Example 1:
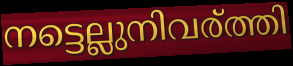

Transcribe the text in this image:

നട്ടെല്ലുനിവര്ത്തി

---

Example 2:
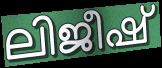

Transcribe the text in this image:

ലിജീഷ്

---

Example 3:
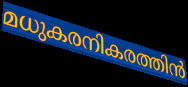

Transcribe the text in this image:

മധുകരനികരത്തിൻ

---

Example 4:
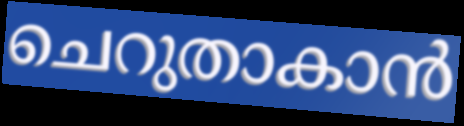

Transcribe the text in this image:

ചെറുതാകാൻ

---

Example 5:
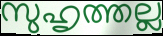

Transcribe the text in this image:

സുഹൃത്തല്ല